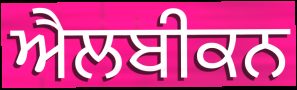
ਐਲਬੀਕਨ